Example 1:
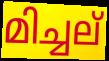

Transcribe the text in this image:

മിച്ചല്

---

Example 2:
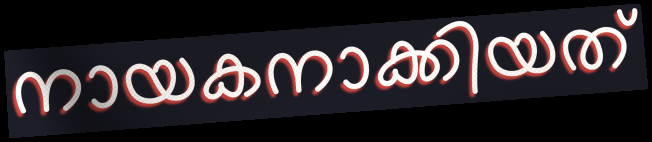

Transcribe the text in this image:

നായകനാക്കിയത്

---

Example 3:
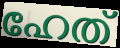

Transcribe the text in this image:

ഹേത്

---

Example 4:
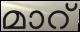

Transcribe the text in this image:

മാറ്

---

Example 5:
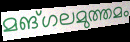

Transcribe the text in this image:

മങ്ഗലമുത്തമം